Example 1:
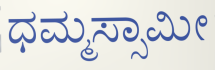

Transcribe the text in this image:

ಧಮ್ಮಸ್ಸಾಮೀ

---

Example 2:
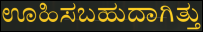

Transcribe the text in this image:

ಊಹಿಸಬಹುದಾಗಿತ್ತು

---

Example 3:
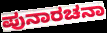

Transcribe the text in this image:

ಪುನಾರಚನಾ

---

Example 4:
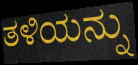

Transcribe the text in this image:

ತಳಿಯನ್ನು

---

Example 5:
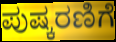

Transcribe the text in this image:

ಪುಷ್ಕರಣಿಗೆ